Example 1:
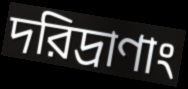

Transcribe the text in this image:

দরিদ্রাণাং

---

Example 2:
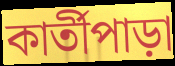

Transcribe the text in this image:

কার্তীপাড়া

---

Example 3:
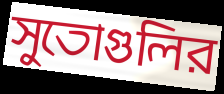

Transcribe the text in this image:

সুতোগুলির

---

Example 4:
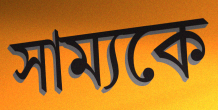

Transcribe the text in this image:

সাম্যকে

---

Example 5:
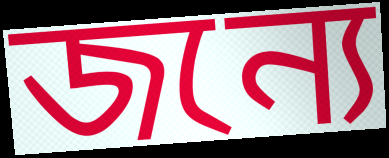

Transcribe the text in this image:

জন্যে